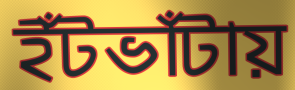
ইঁটভাঁটায়